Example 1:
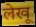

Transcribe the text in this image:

लेखू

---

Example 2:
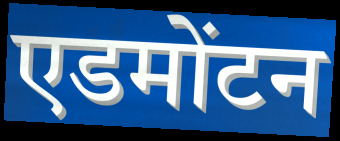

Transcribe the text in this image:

एडमोंटन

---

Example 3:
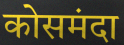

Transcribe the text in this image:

कोसमंदा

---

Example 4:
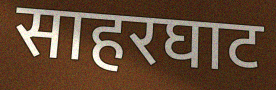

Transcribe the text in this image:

साहरघाट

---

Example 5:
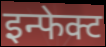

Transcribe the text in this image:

इन्फेक्ट